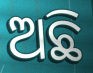
ଅଛି